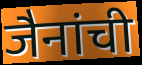
जैनांची